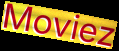
Moviez